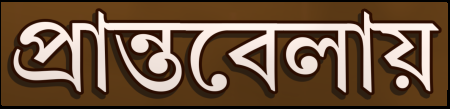
প্রান্তবেলায়